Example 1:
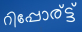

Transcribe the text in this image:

റിപ്പോര്ട്ട്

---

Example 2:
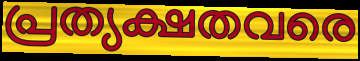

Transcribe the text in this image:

പ്രത്യക്ഷതവരെ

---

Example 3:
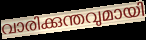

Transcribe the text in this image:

വാരിക്കുന്തവുമായി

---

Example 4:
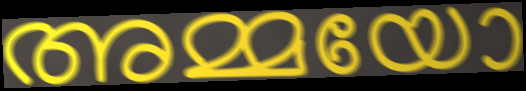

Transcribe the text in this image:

അമ്മയോ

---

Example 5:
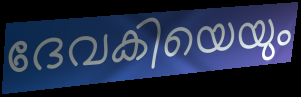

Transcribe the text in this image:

ദേവകിയെയും